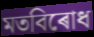
মতবিৰোধ